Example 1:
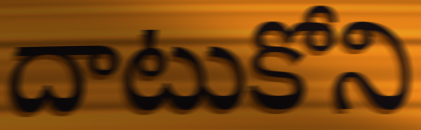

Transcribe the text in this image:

దాటుకోని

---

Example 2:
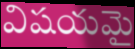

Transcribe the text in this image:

విషయమై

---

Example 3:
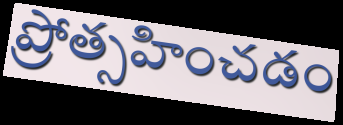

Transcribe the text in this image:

ప్రోత్సహించడం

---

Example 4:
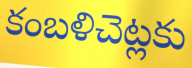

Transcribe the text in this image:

కంబళిచెట్లకు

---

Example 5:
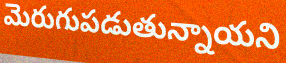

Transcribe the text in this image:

మెరుగుపడుతున్నాయని